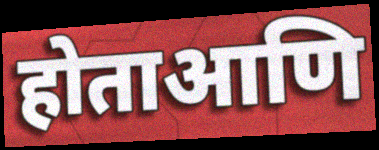
होताआणि